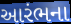
આરંભના